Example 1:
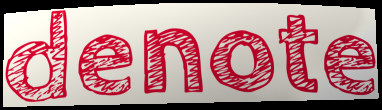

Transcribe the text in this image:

denote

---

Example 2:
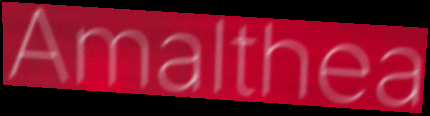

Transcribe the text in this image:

Amalthea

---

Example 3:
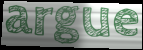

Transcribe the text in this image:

argue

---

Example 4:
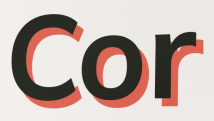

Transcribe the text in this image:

Cor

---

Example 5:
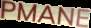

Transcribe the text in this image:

PMANE